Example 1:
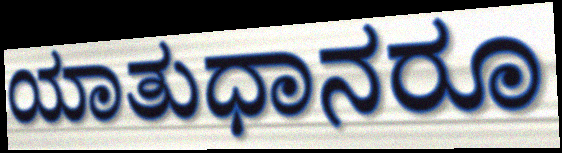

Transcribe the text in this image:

ಯಾತುಧಾನರೂ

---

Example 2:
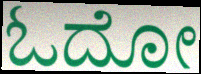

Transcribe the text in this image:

ಓದೋ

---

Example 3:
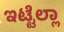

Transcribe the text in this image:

ಇಟ್ಟೆಲ್ಲಾ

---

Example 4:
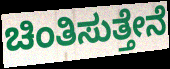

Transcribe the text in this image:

ಚಿಂತಿಸುತ್ತೇನೆ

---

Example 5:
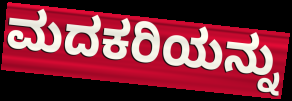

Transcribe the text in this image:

ಮದಕರಿಯನ್ನು